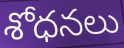
శోధనలు